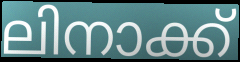
ലിനാക്ക്